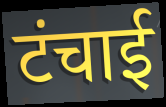
टंचाई